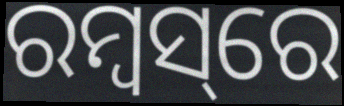
ରମ୍ବସ୍‌ରେ